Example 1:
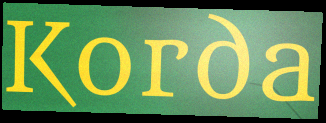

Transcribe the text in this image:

Korda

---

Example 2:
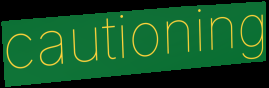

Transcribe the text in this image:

cautioning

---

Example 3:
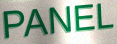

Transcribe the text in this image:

PANEL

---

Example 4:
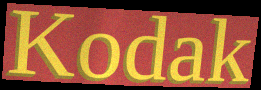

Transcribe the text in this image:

Kodak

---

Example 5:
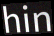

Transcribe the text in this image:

hin